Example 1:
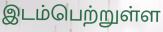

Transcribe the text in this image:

இடம்பெற்றுள்ள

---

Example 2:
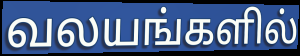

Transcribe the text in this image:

வலயங்களில்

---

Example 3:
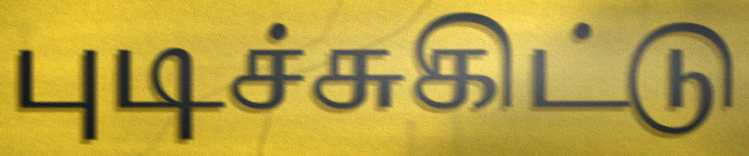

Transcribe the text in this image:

புடிச்சுகிட்டு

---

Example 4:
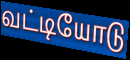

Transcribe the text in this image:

வட்டியோடு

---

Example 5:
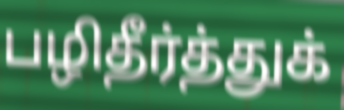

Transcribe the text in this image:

பழிதீர்த்துக்